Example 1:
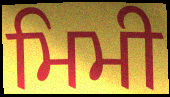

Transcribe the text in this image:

ਮਿਮੀ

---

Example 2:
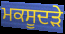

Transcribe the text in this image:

ਮਕਸੂਦੜੇ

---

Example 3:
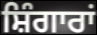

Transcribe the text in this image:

ਸ਼ਿੰਗਾਰਾਂ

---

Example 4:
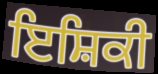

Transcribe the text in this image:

ਇਸ਼ਿਕੀ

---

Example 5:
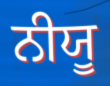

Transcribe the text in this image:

ਨੀਯੂ